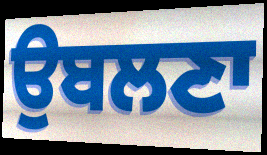
ਉਬਲਣਾ